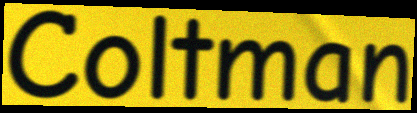
Coltman